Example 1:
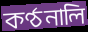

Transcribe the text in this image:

কণ্ঠনালি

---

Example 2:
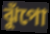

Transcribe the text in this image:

ঝুঁপো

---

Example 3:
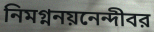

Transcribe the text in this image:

নিমগ্ননয়নেন্দীবর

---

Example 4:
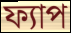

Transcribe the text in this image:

ফ্যাপ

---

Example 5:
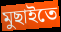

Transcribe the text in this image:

মুছাইতে